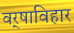
वर्षाविहार